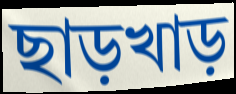
ছাড়খাড়